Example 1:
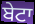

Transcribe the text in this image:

ਬੇਟਾ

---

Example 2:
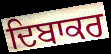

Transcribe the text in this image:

ਦਿਬਾਕਰ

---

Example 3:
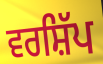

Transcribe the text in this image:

ਵਰਸ਼ਿੱਪ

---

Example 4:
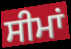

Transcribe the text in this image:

ਸੀਮਾਂ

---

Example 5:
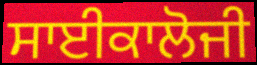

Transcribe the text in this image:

ਸਾਈਕਾਲੋਜੀ